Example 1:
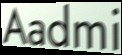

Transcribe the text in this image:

Aadmi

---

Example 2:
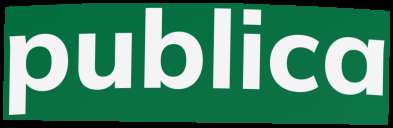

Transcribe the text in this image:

publica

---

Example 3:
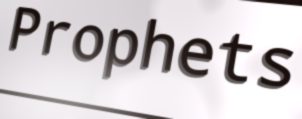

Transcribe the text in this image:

Prophets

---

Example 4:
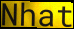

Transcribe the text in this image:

Nhat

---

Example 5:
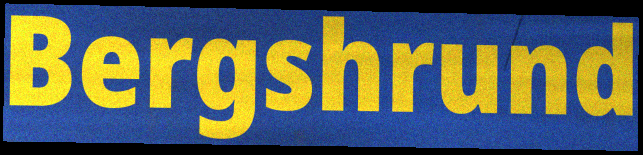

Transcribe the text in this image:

Bergshrund